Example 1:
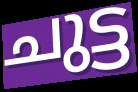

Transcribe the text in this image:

ചുട്ട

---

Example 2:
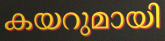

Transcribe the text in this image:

കയറുമായി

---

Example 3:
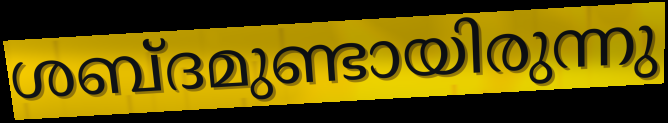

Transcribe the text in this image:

ശബ്ദമുണ്ടായിരുന്നു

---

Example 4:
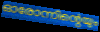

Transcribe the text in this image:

ഓരോന്നിന്റെയും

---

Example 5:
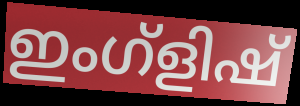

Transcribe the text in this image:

ഇംഗ്ളിഷ്